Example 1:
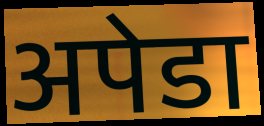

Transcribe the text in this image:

अपेडा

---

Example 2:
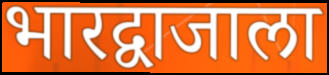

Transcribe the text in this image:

भारद्वाजाला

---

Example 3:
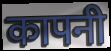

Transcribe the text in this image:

कापनी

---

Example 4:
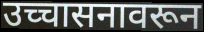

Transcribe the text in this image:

उच्चासनावरून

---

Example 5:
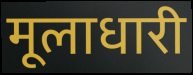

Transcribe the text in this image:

मूलाधारी